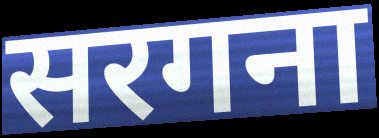
सरगना